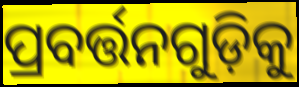
ପ୍ରବର୍ତ୍ତନଗୁଡ଼ିକୁ